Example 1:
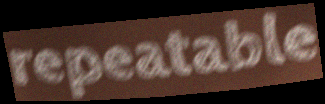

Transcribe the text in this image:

repeatable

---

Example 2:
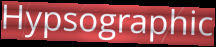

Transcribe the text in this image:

Hypsographic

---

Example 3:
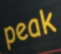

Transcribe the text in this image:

peak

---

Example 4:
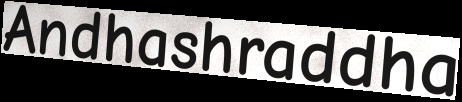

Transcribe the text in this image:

Andhashraddha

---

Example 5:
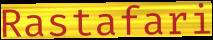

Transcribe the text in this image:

Rastafari